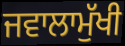
ਜਵਾਲਾਮੁੱਖੀ